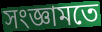
সংজ্ঞামতে